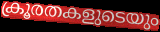
ക്രൂരതകളുടെയും